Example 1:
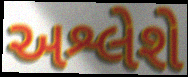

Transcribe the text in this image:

અશ્લેશે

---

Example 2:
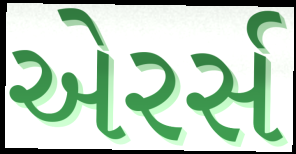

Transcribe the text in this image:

એરર્સ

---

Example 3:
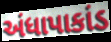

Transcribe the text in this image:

અંધાપાકાંડ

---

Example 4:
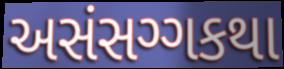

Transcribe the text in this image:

અસંસગ્ગકથા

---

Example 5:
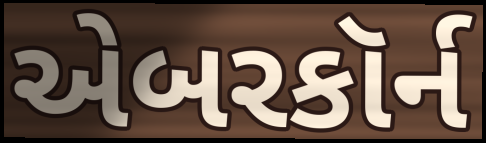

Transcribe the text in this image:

એબરકૉર્ન